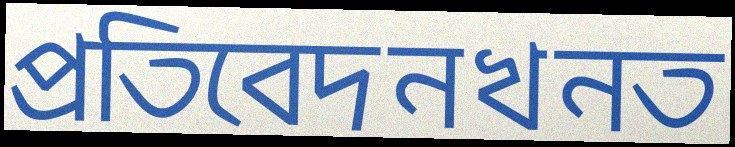
প্ৰতিবেদনখনত